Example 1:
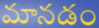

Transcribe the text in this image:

మానడం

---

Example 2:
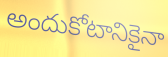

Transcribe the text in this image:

అందుకోటానికైనా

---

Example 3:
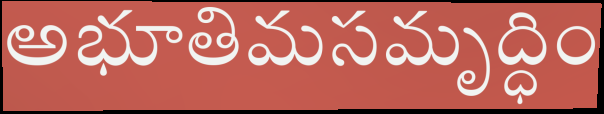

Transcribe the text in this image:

అభూతిమసమృద్ధిం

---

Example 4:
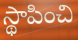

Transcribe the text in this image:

స్థాపించి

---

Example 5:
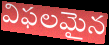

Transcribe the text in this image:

విఫలమైన